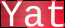
Yat